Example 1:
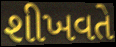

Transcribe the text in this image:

શીખવતે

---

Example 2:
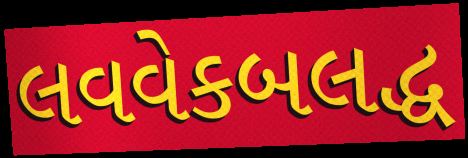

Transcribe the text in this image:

લવવેકબલદ્ધ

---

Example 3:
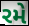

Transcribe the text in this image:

રમે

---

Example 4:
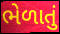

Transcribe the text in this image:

ભેળાતું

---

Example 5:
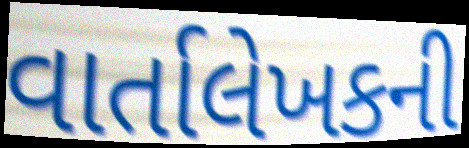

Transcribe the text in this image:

વાર્તાલેખકની